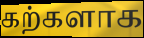
கற்களாக